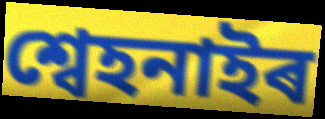
শ্বেহনাইৰ